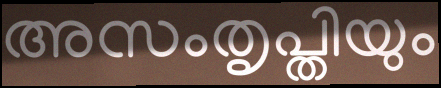
അസംതൃപ്തിയും